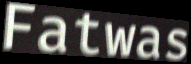
Fatwas